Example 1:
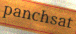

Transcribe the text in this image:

panchsat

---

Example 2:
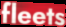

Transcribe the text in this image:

fleets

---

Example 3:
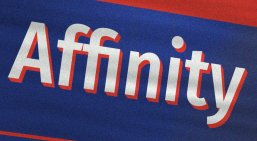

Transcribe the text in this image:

Affinity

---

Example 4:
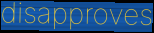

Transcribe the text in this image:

disapproves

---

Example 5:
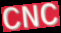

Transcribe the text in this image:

CNC